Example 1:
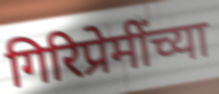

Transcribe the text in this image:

गिरिप्रेमींच्या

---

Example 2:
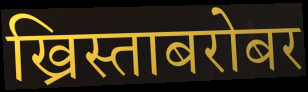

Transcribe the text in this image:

ख्रिस्ताबरोबर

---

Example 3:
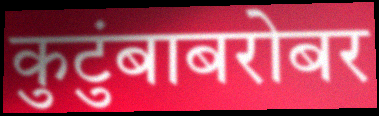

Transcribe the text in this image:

कुटुंबाबरोबर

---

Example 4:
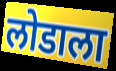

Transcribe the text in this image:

लोडाला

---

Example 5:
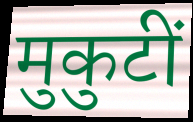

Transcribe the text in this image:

मुकुटीं